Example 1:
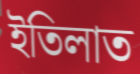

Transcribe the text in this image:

ইতিলাত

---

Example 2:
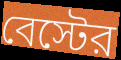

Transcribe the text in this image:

বেস্টের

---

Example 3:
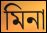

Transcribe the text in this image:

মিনা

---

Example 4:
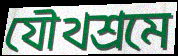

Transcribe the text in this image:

যৌথশ্রমে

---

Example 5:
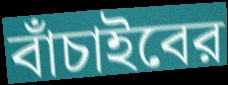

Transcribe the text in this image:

বাঁচাইবের